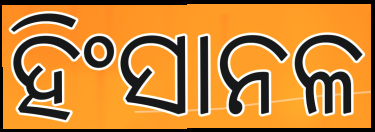
ହିଂସାନଳ